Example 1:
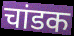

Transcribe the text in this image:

चांडक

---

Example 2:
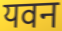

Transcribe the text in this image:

यवन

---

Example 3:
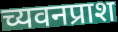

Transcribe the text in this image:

च्यवनप्राश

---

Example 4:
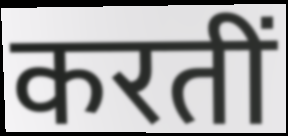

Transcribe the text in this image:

करतीं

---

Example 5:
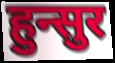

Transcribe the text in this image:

हुन्सुर